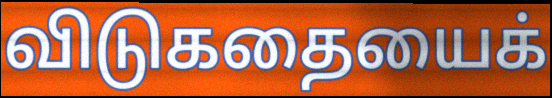
விடுகதையைக்